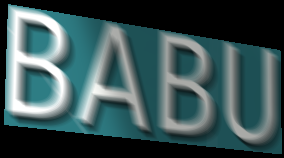
BABU